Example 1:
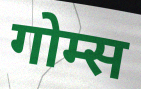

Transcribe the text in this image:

गोम्स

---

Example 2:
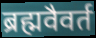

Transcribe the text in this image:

ब्रह्मवैवर्त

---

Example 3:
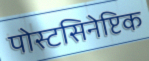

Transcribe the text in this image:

पोस्टसिनेप्टिक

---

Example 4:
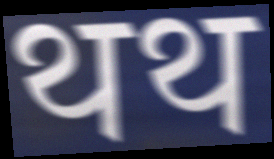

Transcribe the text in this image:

थथ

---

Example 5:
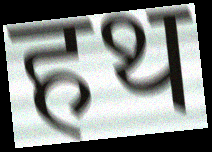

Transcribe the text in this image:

हथ